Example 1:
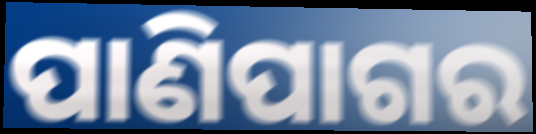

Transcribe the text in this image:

ପାଣିପାଗର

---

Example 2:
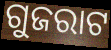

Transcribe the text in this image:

ଗୁଜରାଟ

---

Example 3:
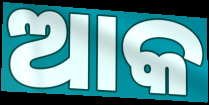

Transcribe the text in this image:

ଆକ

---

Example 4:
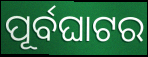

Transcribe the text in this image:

ପୂର୍ବଘାଟର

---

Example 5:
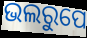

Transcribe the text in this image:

ଭଲରୁପେ